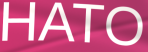
HATO